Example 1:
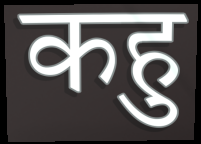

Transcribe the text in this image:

कहु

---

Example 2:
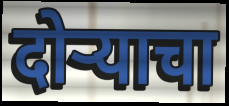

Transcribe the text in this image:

दोर्‍याचा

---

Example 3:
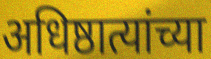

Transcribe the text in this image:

अधिष्ठात्यांच्या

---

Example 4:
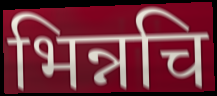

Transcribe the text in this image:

भिन्नचि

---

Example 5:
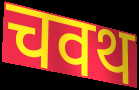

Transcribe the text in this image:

चवथ